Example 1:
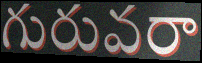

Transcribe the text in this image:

గురువరా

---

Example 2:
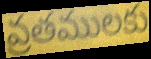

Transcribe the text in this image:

వ్రతములకు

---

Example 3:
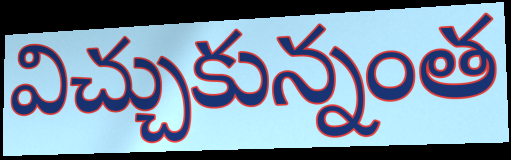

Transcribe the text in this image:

విచ్చుకున్నంత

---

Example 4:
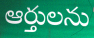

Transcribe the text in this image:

ఆర్తులను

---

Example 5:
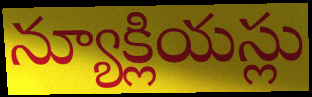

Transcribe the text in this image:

న్యూక్లియస్లు